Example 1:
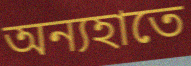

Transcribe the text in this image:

অন্যহাতে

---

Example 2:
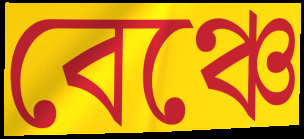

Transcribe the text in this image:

বেঞ্চে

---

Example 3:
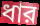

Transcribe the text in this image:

ধার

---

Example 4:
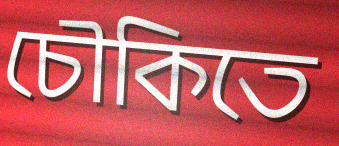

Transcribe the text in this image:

চৌকিতে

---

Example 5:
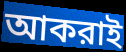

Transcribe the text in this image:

আকরাই